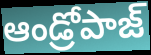
ఆండ్రోపాజ్